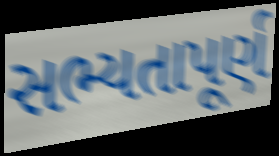
સભ્યતાપૂર્ણ